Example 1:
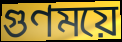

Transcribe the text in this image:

গুণময়ে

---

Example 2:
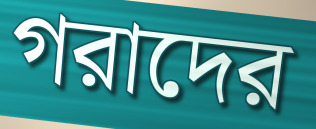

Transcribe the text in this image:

গরাদের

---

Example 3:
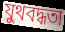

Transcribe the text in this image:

যুথবদ্ধতা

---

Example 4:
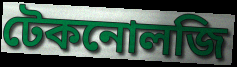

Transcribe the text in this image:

টেকনোলজি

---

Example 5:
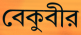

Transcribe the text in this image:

বেকুবীর